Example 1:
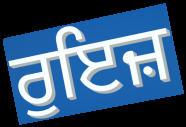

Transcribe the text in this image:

ਰੁਇਜ਼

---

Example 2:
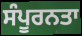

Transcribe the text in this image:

ਸੰਪੂਰਨਤਾ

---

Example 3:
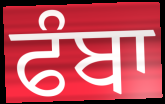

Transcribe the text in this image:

ਫੰਬਾ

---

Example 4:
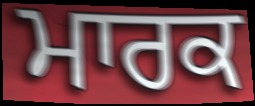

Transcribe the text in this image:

ਮਾਰਕ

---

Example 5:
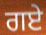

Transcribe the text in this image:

ਗਏ